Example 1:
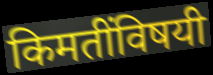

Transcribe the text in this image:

किमतींविषयी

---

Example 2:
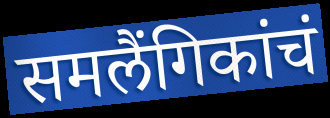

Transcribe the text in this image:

समलैंगिकांचं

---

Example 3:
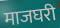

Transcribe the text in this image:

माजघरी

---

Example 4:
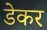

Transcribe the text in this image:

डेकर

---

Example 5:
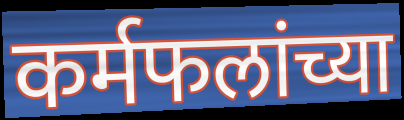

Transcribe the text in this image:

कर्मफलांच्या